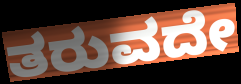
ತರುವದೇ